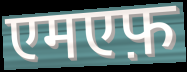
एमएफ़